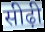
सीढ़ी